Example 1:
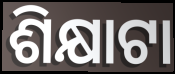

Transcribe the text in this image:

ଶିକ୍ଷାଟା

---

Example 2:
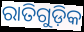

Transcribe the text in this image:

ରାତିଗୁଡ଼ିକ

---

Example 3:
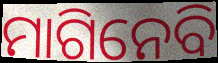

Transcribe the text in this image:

ମାଗିନେବି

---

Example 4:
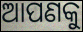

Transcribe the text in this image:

ଆପଣକୁ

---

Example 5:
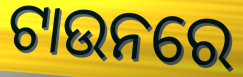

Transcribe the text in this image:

ଟାଉନରେ